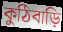
কুঠিবাড়ি